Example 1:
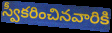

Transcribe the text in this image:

స్వీకరించినవారికి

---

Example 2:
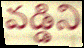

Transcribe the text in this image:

వడ్డిని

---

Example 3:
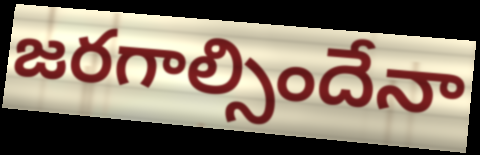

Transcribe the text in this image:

జరగాల్సిందేనా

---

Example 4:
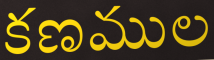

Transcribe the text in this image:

కణముల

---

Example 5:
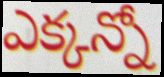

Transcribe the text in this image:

ఎక్కన్నో